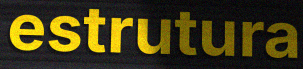
estrutura